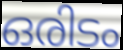
ഒരിടം